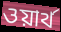
ওয়ার্থ